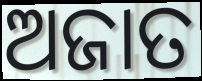
ଅଜାତ